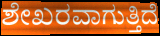
ಶೇಖರವಾಗುತ್ತಿದೆ